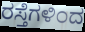
ರಸ್ತೆಗಳಿಂದ